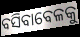
ବସିବାବେଳକୁ